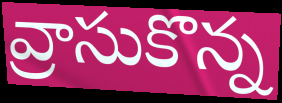
వ్రాసుకొన్న